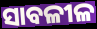
ସାବଳୀଳ